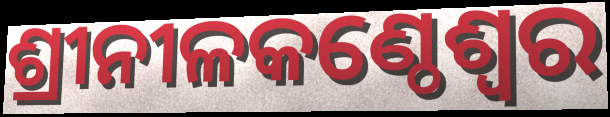
ଶ୍ରୀନୀଳକଣ୍ଠେଶ୍ଵର